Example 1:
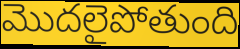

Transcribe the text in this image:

మొదలైపోతుంది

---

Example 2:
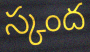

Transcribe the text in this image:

స్కంద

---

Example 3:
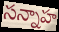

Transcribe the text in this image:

సన్నాహ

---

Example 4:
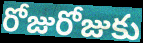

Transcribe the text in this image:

రోజురోజుకు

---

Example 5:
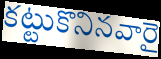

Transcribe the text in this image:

కట్టుకొనినవారై